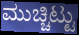
ಮುಚ್ಚಿಟ್ಟು